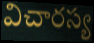
విచారస్య